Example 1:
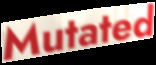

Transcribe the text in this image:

Mutated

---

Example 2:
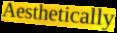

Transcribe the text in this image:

Aesthetically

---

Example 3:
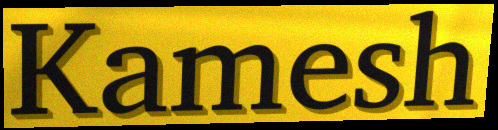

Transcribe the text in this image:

Kamesh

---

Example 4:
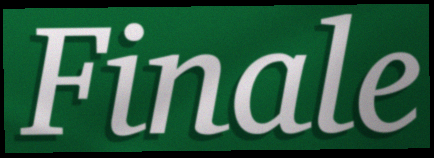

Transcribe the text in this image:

Finale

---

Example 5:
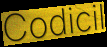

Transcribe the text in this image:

Codicil